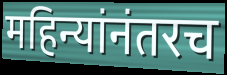
महिन्यांनंतरच